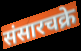
संसारचक्रे